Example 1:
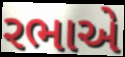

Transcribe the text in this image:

રભાએ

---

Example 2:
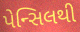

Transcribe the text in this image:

પેન્સિલથી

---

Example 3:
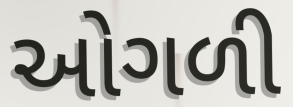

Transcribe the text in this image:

ઓગળી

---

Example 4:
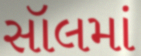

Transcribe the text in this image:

સૉલમાં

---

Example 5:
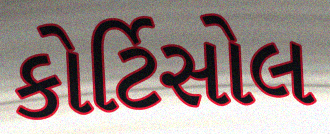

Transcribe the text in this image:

કોર્ટિસોલ